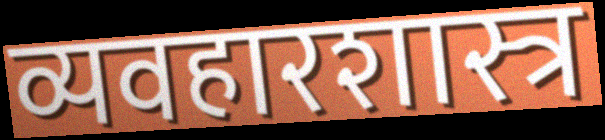
व्यवहारशास्त्र